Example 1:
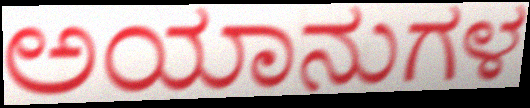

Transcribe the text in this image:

ಅಯಾನುಗಳ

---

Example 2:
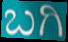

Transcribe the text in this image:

ಬಗಿ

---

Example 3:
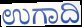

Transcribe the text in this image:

ಉಗಾದಿ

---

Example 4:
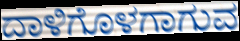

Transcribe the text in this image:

ದಾಳಿಗೊಳಗಾಗುವ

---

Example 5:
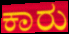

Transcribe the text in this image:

ಕಾರು